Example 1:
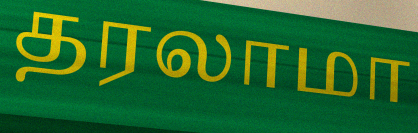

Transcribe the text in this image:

தரலாமா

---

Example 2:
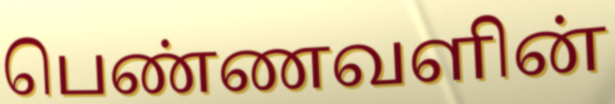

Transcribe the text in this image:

பெண்ணவளின்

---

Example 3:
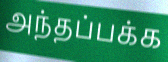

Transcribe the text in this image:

அந்தப்பக்க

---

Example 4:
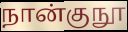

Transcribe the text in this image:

நான்குநூ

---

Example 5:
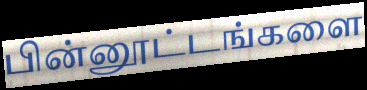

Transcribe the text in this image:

பின்னூட்டங்களை